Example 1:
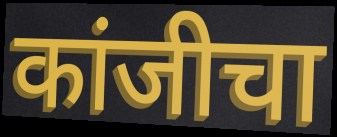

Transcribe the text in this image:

कांजीचा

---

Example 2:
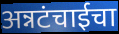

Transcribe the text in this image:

अन्नटंचाईचा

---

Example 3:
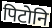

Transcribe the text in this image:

पिटोनि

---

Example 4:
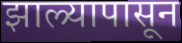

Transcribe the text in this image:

झाल्यापासून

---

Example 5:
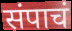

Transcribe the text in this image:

संपाचं